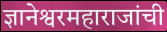
ज्ञानेश्वरमहाराजांची